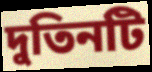
দুতিনটি